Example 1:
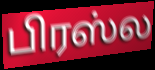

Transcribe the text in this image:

பிரஸ்ல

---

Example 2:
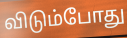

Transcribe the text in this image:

விடும்போது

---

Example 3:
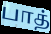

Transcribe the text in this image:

பாத்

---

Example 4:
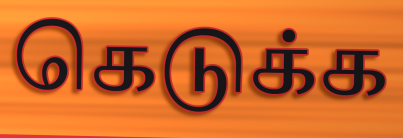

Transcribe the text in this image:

கெடுக்க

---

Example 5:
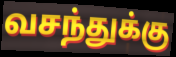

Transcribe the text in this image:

வசந்துக்கு